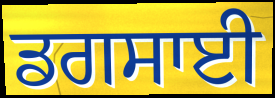
ਡਗਸਾਈ